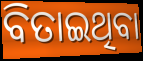
ବିତାଇଥିବା